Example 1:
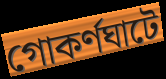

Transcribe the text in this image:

গোকর্ণঘাটে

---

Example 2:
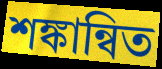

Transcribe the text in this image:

শঙ্কান্বিত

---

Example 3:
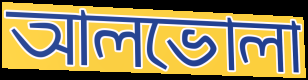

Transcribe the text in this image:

আলভোলা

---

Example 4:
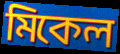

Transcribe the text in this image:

মিকেল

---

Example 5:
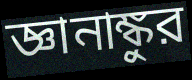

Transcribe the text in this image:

জ্ঞানাঙ্কুর